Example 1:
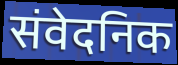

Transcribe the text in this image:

संवेदनिक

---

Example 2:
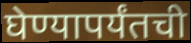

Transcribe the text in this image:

घेण्यापर्यंतची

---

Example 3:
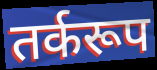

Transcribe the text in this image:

तर्करूप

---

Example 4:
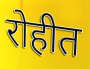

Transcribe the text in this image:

रोहीत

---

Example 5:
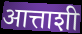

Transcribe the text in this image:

आत्ताशी